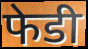
फेडी